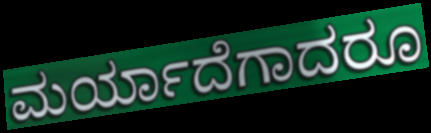
ಮರ್ಯಾದೆಗಾದರೂ